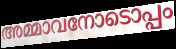
അമ്മാവനോടൊപ്പം